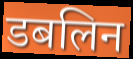
डबलिन